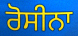
ਰੋਸੀਨਾ